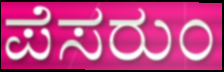
ಪೆಸರುಂ